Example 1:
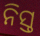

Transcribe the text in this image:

ନିସ୍ତ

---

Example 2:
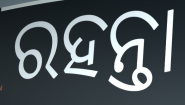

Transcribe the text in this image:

ରହନ୍ତା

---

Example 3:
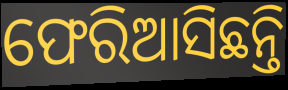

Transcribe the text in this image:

ଫେରିଆସିଛନ୍ତି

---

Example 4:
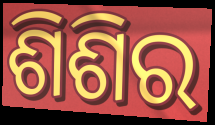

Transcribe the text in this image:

ଶିଶିର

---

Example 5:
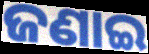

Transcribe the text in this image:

ଜଣାଇ